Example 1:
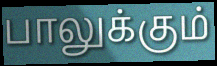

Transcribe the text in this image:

பாலுக்கும்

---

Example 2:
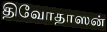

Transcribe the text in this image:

திவோதாஸன்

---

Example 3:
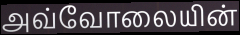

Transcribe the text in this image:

அவ்வோலையின்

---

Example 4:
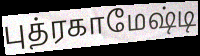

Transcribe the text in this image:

புத்ரகாமேஷ்டி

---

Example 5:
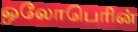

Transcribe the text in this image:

ஒலோபெரின்